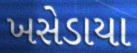
ખસેડાયા